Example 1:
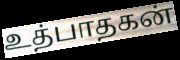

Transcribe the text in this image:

உத்பாதகன்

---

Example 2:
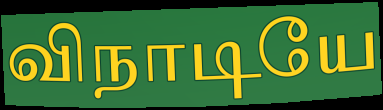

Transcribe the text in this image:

விநாடியே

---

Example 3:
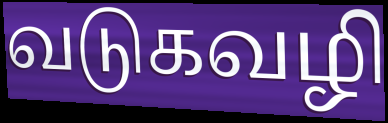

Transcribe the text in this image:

வடுகவழி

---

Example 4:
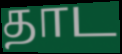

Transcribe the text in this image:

தாட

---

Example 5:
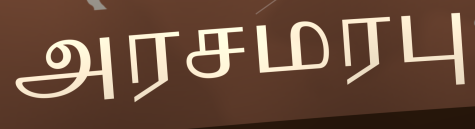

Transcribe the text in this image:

அரசமரபு